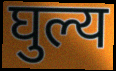
घुल्य